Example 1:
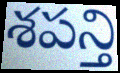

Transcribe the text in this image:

శపన్తి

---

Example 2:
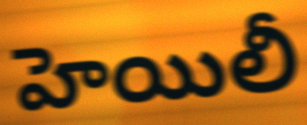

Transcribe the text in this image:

హెయిలీ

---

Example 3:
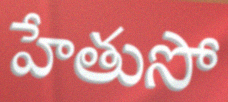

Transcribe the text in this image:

హేతుసో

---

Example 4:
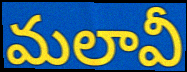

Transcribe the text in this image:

మలావీ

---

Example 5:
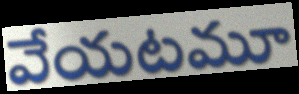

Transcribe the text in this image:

వేయటమూ